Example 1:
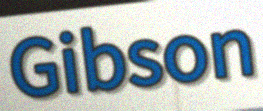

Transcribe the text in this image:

Gibson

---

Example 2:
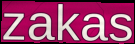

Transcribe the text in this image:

zakas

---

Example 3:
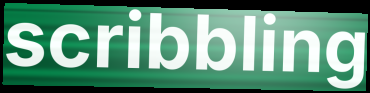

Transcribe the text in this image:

scribbling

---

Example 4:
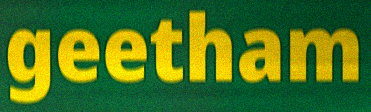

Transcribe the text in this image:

geetham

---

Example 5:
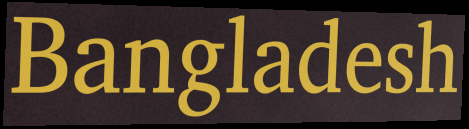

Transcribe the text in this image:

Bangladesh